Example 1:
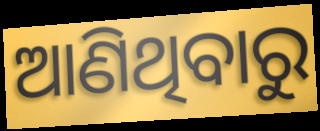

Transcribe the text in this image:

ଆଣିଥିବାରୁ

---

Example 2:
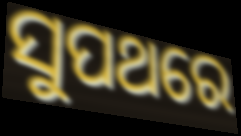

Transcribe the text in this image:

ସୁପଥରେ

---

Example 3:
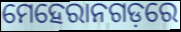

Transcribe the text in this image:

ମେହେରାନଗଡ଼ରେ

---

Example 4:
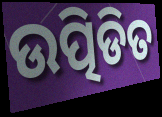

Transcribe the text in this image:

ଉତ୍ପିଡିତ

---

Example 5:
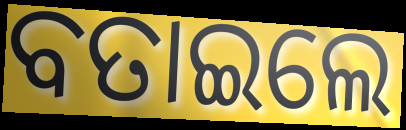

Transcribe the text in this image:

ବତାଇଲେ